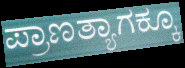
ಪ್ರಾಣತ್ಯಾಗಕ್ಕೂ